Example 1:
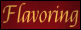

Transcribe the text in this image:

Flavoring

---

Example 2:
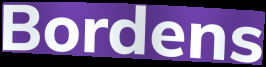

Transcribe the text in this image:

Bordens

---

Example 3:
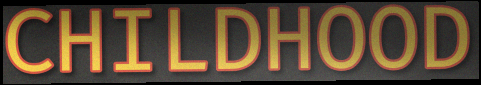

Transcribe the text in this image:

CHILDHOOD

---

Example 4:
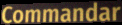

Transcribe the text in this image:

Commandar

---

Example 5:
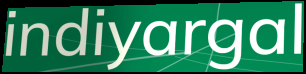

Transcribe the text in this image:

indiyargal